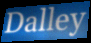
Dalley